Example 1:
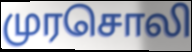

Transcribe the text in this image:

முரசொலி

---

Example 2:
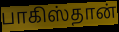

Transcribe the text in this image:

பாகிஸ்தான்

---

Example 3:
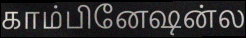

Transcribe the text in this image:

காம்பினேஷன்ல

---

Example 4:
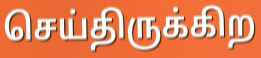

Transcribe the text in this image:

செய்திருக்கிற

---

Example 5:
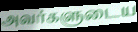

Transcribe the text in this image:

அவர்களுடைய